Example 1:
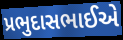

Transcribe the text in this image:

પ્રભુદાસભાઈએ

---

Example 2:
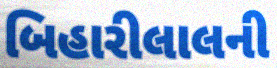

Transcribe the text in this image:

બિહારીલાલની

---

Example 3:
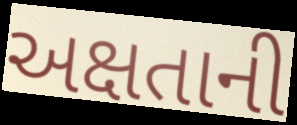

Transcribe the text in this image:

અક્ષતાની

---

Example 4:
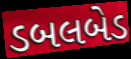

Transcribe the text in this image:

ડબલબેડ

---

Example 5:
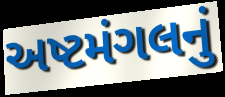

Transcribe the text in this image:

અષ્ટમંગલનું